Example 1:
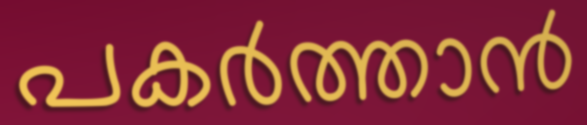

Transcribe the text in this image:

പകർത്താൻ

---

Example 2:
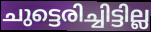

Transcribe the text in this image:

ചുട്ടെരിച്ചിട്ടില്ല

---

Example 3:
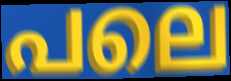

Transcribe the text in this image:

പലെ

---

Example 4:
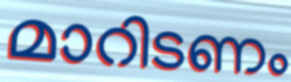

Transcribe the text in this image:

മാറിടണം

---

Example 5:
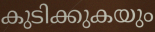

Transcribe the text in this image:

കുടിക്കുകയും